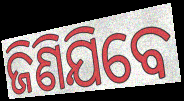
ଜିଣିଯିବେ